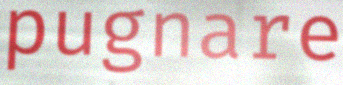
pugnare